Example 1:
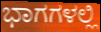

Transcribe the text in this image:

ಭಾಗಗಳಲ್ಲಿ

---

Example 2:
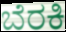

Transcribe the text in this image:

ಬೆರಕಿ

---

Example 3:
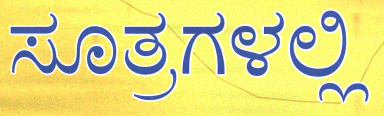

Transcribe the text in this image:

ಸೂತ್ರಗಳಲ್ಲಿ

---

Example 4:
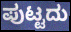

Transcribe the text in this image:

ಪುಟ್ಟದು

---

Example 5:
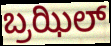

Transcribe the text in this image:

ಬ್ರಝಿಲ್